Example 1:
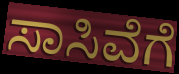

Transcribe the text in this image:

ಸಾಸಿವೆಗೆ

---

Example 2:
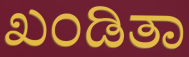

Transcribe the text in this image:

ಖಂಡಿತಾ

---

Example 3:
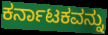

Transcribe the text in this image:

ಕರ್ನಾಟಕವನ್ನು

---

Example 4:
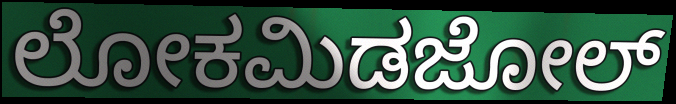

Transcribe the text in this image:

ಲೋಕಮಿಡಜೋಲ್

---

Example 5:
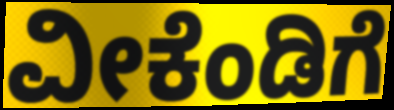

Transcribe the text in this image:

ವೀಕೆಂಡಿಗೆ